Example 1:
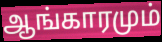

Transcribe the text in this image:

ஆங்காரமும்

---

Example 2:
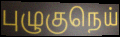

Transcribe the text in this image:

புழுகுநெய்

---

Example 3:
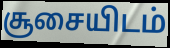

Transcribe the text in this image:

சூசையிடம்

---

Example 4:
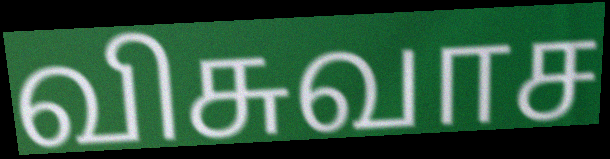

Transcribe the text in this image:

விசுவாச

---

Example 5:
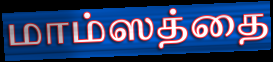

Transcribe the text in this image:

மாம்ஸத்தை